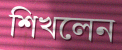
শিখলেন